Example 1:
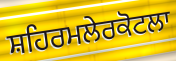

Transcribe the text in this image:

ਸ਼ਹਿਰਮਲੇਰਕੋਟਲਾ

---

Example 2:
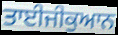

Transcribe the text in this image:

ਤਾਈਜੀਕੁਆਨ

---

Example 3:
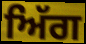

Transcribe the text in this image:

ਅਿੱਗ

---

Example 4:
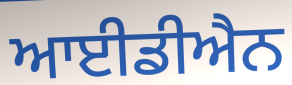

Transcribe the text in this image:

ਆਈਡੀਐਨ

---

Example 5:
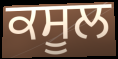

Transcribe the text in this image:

ਕਸੂਲ